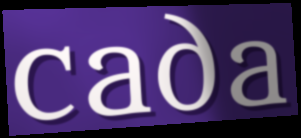
cada